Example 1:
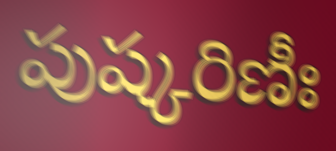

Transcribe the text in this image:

పుష్కరిణీః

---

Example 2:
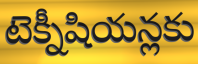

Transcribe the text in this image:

టెక్నీషియన్లకు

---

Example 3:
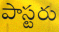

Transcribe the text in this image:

పాస్టరు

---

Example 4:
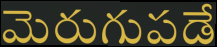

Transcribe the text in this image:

మెరుగుపడే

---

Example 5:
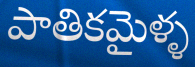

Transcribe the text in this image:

పాతికమైళ్ళ